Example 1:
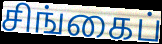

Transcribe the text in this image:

சிங்கைப்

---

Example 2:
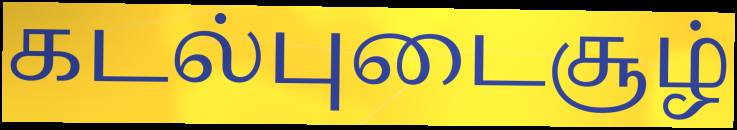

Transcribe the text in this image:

கடல்புடைசூழ்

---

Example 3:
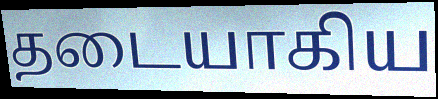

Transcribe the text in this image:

தடையாகிய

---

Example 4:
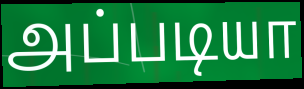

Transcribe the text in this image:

அப்படியா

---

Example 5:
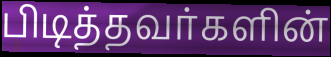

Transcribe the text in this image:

பிடித்தவர்களின்